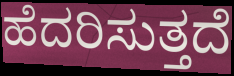
ಹೆದರಿಸುತ್ತದೆ